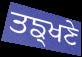
ਤਙ੍ਖਣੇ